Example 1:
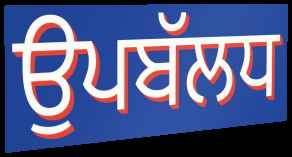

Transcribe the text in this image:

ਉਪਬੱਲਧ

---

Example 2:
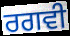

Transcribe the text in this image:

ਰਗਵੀ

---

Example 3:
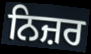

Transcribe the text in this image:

ਨਿਜ਼ਰ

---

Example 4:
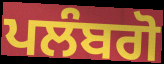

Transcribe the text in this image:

ਪਲੰਬਗੋ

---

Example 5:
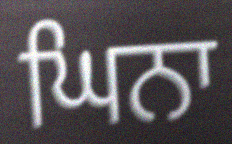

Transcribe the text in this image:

ਘਿਨਾ